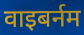
वाइबर्नम